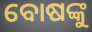
ବୋଷଙ୍କୁ